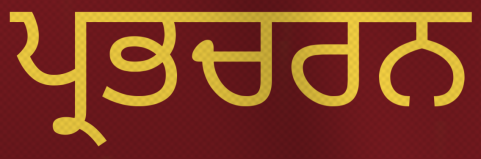
ਪ੍ਰਭਚਰਨ